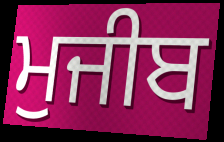
ਮੁਜੀਬ